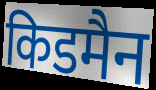
किडमैन